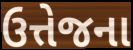
ઉત્તેજના